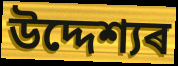
উদ্দেশ্যৰ